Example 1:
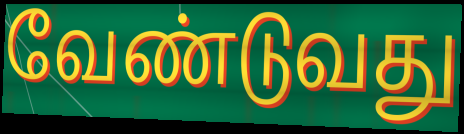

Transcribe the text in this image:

வேண்டுவது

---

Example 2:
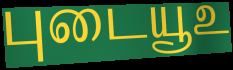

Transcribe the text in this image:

புடையூஉ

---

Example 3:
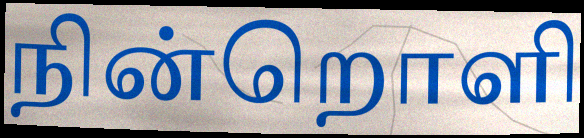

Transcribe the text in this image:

நின்றொளி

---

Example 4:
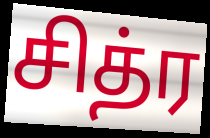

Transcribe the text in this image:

சித்ர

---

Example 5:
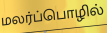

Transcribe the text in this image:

மலர்ப்பொழில்